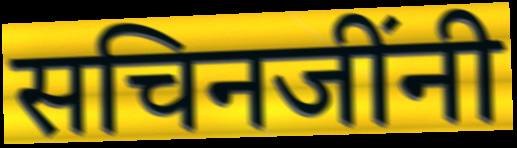
सचिनजींनी